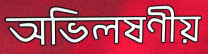
অভিলষণীয়